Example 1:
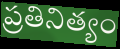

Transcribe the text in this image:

ప్రతినిత్యం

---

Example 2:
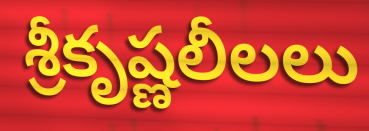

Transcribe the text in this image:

శ్రీకృష్ణలీలలు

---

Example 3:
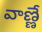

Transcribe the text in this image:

వాణ్ణే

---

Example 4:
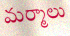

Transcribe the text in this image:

మర్మాలు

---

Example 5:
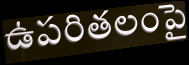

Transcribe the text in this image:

ఉపరితలంపై